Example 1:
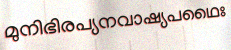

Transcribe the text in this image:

മുനിഭിരപ്യനവാഷ്യപഥൈഃ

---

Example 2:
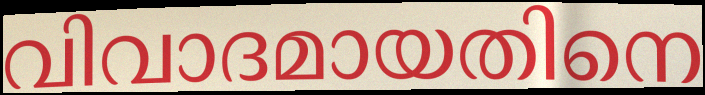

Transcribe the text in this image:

വിവാദമായതിനെ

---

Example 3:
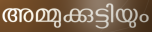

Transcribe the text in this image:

അമ്മുക്കുട്ടിയും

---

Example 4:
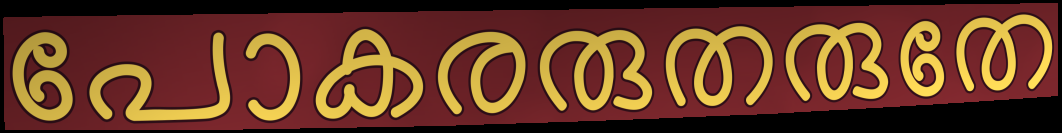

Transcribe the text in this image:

പോകരരുതരുതേ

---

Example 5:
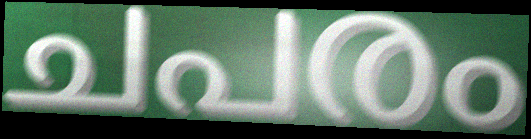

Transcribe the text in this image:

ചപരം